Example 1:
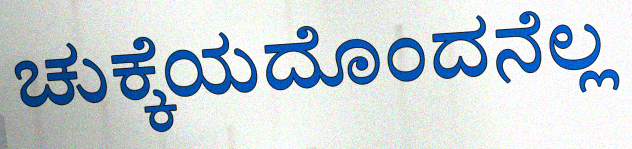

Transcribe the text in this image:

ಚುಕ್ಕೆಯದೊಂದನೆಲ್ಲ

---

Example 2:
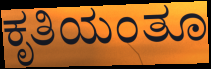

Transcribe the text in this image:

ಕೃತಿಯಂತೂ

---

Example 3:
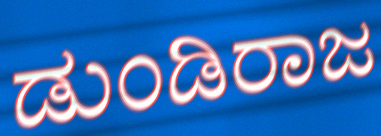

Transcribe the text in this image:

ಡುಂಡಿರಾಜ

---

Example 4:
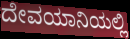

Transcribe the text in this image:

ದೇವಯಾನಿಯಲ್ಲಿ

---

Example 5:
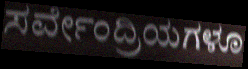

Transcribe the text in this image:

ಸರ್ವೇಂದ್ರಿಯಗಳೂ